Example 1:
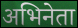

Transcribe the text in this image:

अभिनेता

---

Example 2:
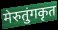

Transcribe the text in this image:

मेरुतुंगकृत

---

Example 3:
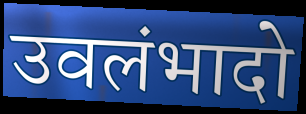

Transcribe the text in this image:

उवलंभादो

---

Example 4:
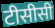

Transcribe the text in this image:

टीसीसी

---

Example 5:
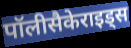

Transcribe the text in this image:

पॉलीसैकेराइड्स